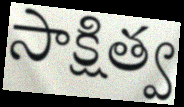
సాక్షిత్వ